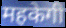
महकेगी